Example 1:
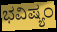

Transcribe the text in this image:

ಭವಿಷ್ಯಂ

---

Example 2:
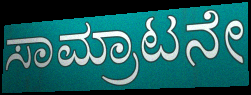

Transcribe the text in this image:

ಸಾಮ್ರಾಟನೇ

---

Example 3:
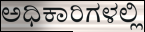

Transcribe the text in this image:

ಅಧಿಕಾರಿಗಳಲ್ಲಿ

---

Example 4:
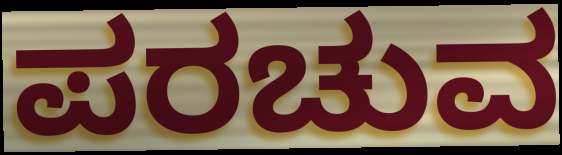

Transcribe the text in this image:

ಪರಚುವ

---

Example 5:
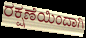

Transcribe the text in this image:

ರಕ್ಷಣೆಯಿಂದಾಗಿ